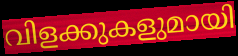
വിളക്കുകളുമായി